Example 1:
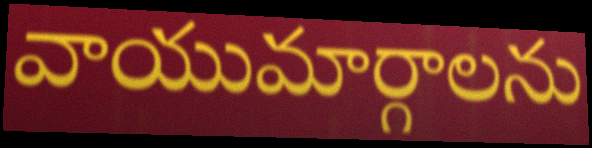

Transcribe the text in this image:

వాయుమార్గాలను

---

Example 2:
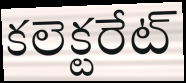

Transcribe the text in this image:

కలెక్టరేట్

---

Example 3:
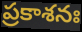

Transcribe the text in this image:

ప్రకాశనః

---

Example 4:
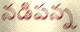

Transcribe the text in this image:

నడిపన్న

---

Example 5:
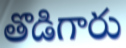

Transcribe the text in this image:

తొడిగారు